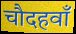
चौदहवाँ